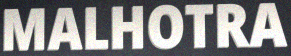
MALHOTRA